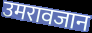
उमरावजान